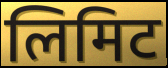
लिमिट